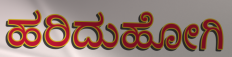
ಹರಿದುಹೋಗಿ